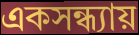
একসন্ধ্যায়